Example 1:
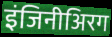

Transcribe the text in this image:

इंजिनीअिरग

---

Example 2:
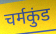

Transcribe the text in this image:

चर्मकुंड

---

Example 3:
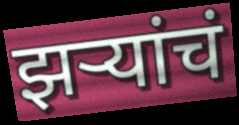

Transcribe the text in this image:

झर्‍यांचं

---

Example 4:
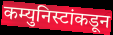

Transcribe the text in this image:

कम्युनिस्टांकडून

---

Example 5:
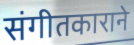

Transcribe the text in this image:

संगीतकाराने